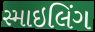
સ્માઇલિંગ